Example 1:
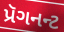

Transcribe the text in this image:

પ્રૅગનન્ટ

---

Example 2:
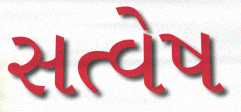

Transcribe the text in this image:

સત્વેષ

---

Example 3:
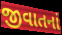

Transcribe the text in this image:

જીવાતનાં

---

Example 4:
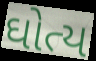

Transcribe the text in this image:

ઘોત્ય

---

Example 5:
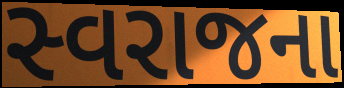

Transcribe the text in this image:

સ્વરાજના